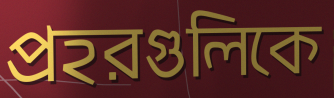
প্রহরগুলিকে